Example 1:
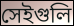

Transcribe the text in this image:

সেইগুলি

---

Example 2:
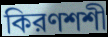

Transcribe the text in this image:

কিরণশশী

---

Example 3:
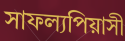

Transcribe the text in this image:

সাফল্যপিয়াসী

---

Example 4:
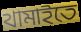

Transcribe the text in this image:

থামাইতে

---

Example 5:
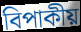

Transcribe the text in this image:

বিপাকীয়